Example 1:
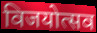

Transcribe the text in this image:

विजयोत्सव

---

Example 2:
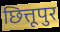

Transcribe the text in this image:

छित्तूपुर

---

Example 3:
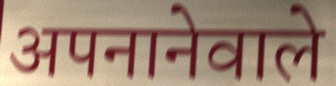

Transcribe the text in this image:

अपनानेवाले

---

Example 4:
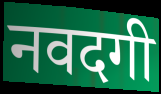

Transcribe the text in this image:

नवदगी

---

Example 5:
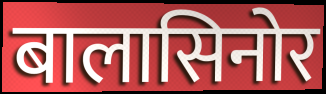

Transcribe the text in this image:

बालासिनोर